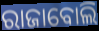
ରାଜାବୋଲି